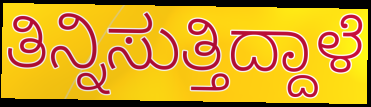
ತಿನ್ನಿಸುತ್ತಿದ್ದಾಳೆ